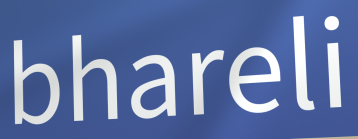
bhareli